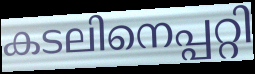
കടലിനെപ്പറ്റി